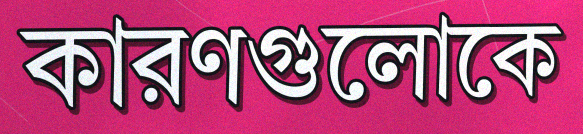
কারণগুলোকে